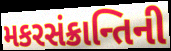
મકરસંક્રાન્તિની